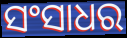
ସଂସାଧର